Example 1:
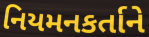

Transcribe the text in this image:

નિયમનકર્તાને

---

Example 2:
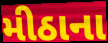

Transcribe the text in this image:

મીઠાના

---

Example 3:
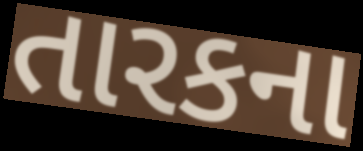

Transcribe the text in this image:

તારકના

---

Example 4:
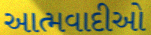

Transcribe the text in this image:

આત્મવાદીઓ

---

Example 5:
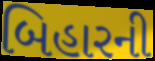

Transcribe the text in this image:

બિહારની